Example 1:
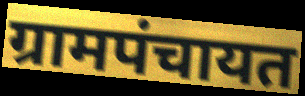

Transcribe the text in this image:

ग्रामपंचायत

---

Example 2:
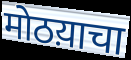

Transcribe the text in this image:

मोठय़ाचा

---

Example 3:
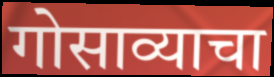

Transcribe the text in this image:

गोसाव्याचा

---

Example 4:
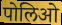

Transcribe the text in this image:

पोलिओ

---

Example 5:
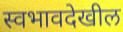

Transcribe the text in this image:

स्वभावदेखील